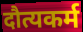
दौत्यकर्म